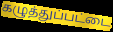
கழுத்துப்பட்டை